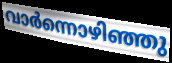
വാർന്നൊഴിഞ്ഞു